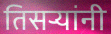
तिसऱ्यांनी